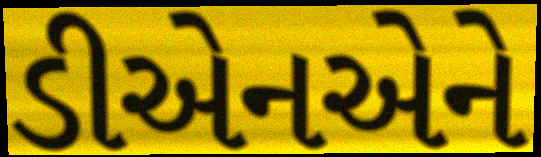
ડીએનએને